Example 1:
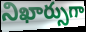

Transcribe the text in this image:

నిఖార్సుగా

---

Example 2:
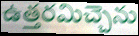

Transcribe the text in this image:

ఉత్తరమిచ్చెను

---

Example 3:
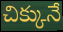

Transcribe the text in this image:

చిక్కునే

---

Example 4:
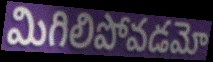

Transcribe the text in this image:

మిగిలిపోవడమో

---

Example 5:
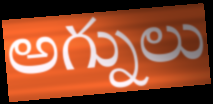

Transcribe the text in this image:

అగ్నులు